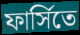
ফার্সিতে